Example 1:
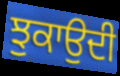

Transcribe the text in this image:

ਝੁਕਾਉਦੀ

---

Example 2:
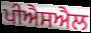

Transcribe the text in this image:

ਪੀਐਸਐਲ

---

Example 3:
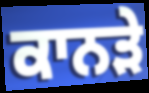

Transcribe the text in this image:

ਕਾਨੜੇ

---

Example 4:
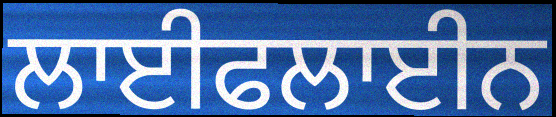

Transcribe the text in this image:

ਲਾਈਫਲਾਈਨ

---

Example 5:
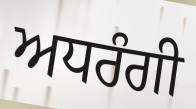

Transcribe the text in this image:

ਅਧਰੰਗੀ